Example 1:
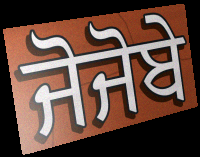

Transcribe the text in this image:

ਜੋਜੋਬੇ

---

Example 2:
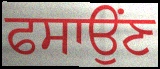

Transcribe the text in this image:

ਫਸਾਉਂਣ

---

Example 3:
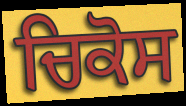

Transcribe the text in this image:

ਚਿਕੋਸ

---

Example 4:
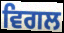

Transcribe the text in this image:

ਵਿਗਲ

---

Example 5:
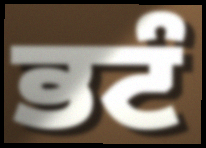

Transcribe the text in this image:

ਭਟੰ